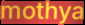
mothya